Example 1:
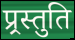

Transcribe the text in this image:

प्र्रस्तुति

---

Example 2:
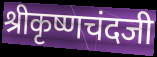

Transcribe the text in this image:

श्रीकृष्णचंदजी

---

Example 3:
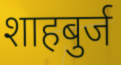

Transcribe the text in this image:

शाहबुर्ज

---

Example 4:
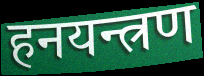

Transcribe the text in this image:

हनयन्त्रण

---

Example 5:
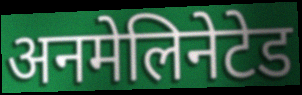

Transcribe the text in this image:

अनमेलिनेटेड